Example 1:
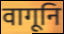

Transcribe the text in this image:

वागूनि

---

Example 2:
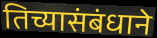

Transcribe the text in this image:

तिच्यासंबंधाने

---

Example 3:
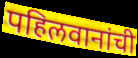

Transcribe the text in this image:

पहिलवानांची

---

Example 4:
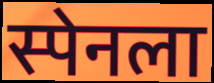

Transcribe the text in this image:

स्पेनला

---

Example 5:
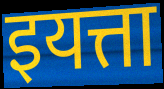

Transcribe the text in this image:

इयत्ता